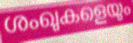
ശംഖുകളെയും